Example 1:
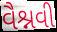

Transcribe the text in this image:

વૈશ્નવી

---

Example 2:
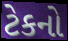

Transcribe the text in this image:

ટેકનો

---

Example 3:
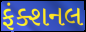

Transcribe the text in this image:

ફંક્શનલ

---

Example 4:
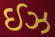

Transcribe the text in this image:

ઈઝ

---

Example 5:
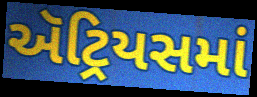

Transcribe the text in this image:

ઍટ્રિયસમાં